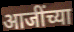
आजींच्या